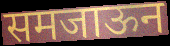
समजाऊन